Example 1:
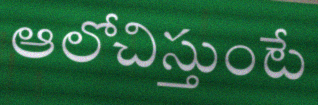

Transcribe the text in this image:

ఆలోచిస్తుంటే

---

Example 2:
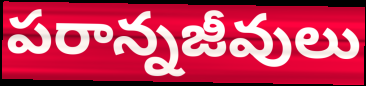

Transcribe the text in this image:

పరాన్నజీవులు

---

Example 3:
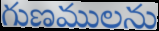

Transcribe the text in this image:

గుణములను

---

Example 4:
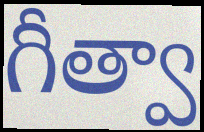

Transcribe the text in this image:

గీత్వా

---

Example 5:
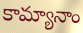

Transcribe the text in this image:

కామ్యానాం